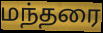
மந்தரை